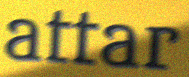
attar